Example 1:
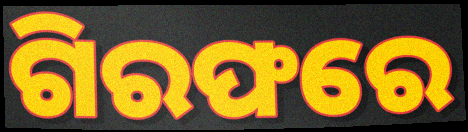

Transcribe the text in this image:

ଗିରଫରେ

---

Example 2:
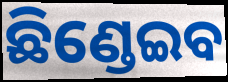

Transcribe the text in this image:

ଛିଣ୍ଡେଇବ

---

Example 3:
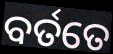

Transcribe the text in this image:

ବର୍ତତେ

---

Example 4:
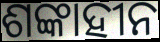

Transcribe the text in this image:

ଶଙ୍କାହୀନ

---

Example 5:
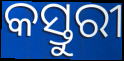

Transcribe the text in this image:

କସ୍ତୁରୀ